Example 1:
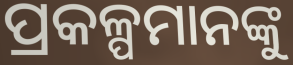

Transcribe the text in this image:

ପ୍ରକଳ୍ପମାନଙ୍କୁ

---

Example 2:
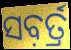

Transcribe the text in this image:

ସବ଼ର୍ତ୍ର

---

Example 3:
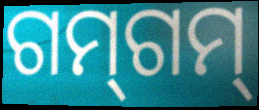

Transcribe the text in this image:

ଗମ୍‍ଗମ୍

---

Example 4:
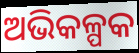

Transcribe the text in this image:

ଅଭିକଳ୍ପକ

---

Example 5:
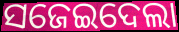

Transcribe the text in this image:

ସଜେଇଦେଲା